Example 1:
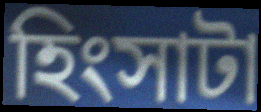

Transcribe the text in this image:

হিংসাটা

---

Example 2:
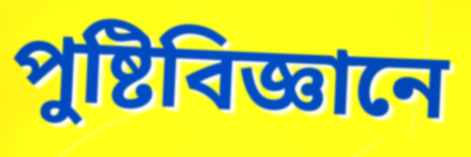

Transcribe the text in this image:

পুষ্টিবিজ্ঞানে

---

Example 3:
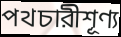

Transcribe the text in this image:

পথচারীশূণ্য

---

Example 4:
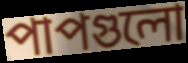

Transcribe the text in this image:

পাপগুলো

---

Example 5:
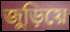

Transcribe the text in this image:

জুড়িয়ে